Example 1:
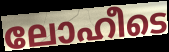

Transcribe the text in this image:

ലോഹീടെ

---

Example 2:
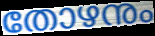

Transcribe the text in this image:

തോഴനും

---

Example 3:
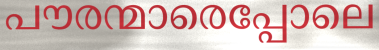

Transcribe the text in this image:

പൗരന്മാരെപ്പോലെ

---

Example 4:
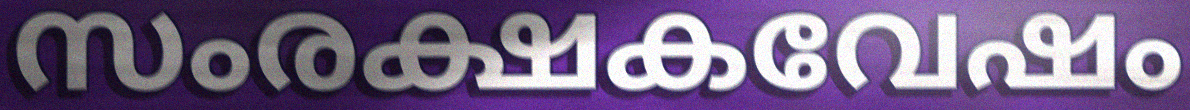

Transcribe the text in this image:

സംരക്ഷകവേഷം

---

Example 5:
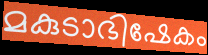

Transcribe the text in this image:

മകുടാഭിഷേകം